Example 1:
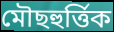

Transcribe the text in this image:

মৌছহুৰ্ত্তিক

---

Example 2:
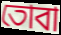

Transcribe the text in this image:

তোবা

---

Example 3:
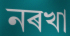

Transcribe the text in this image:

নৰখা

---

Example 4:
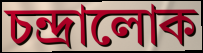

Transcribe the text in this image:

চন্দ্ৰালোক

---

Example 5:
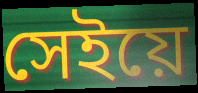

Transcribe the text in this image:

সেইয়ে